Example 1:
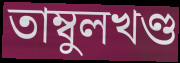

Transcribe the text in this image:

তাম্বুলখণ্ড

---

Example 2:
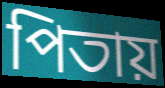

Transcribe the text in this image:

পিতায়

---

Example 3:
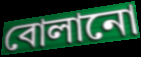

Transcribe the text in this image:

বোলানো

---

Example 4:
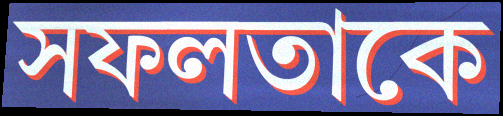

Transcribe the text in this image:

সফলতাকে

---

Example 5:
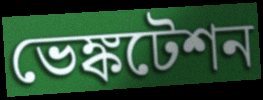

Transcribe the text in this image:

ভেঙ্কটেশন